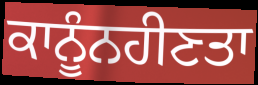
ਕਾਨੂੰਨਹੀਣਤਾ